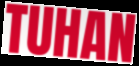
TUHAN